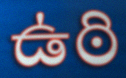
ఉఠి